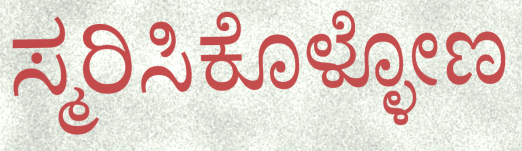
ಸ್ಮರಿಸಿಕೊಳ್ಳೋಣ